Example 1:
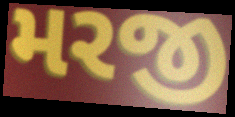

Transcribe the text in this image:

મરજી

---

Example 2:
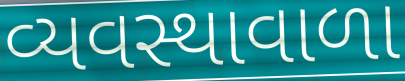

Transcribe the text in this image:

વ્યવસ્થાવાળા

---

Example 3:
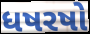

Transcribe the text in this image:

ધષરષો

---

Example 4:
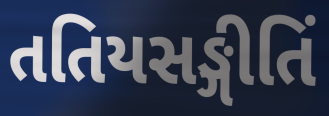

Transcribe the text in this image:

તતિયસઙ્ગીતિં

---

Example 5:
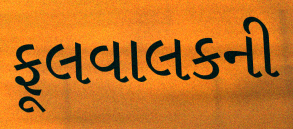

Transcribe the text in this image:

ફૂલવાલકની